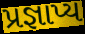
પ્રજ્ઞાપ્ય